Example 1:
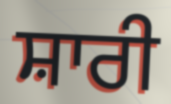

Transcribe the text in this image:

ਸ਼ਾਰੀ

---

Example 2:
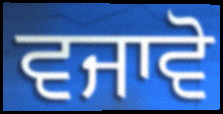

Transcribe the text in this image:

ਵਜਾਵੋ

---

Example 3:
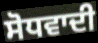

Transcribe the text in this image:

ਸੋਧਵਾਦੀ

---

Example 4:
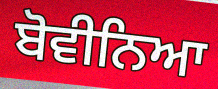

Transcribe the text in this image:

ਬੋਵੀਨਿਆ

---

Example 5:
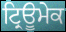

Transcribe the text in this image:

ਟ੍ਰਿਊਮੇਕ